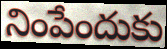
నింపేందుకు